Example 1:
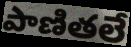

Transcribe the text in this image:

పాణితలే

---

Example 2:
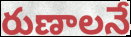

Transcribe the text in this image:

రుణాలనే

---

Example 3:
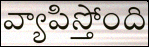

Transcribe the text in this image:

వ్యాపిస్తోంది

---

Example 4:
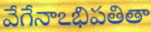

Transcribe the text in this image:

వేగేనాఽభిపతితా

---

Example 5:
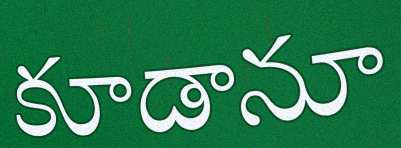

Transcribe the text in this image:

కూడానూ